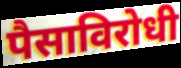
पैसाविरोधी